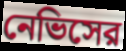
নেভিসের